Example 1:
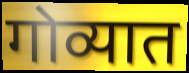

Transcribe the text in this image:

गोव्यात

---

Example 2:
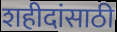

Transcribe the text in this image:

शहीदांसाठी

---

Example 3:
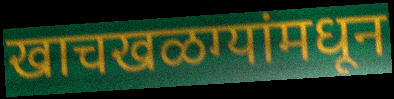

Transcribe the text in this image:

खाचखळग्यांमधून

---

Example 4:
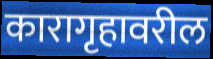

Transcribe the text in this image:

कारागृहावरील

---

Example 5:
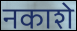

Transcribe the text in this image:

नकाशे